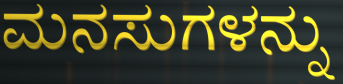
ಮನಸುಗಳನ್ನು